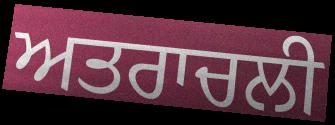
ਅਤਰਾਚਲੀ